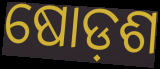
ଷୋଡ଼ଶ